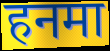
हनमा